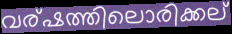
വര്ഷത്തിലൊരിക്കല്